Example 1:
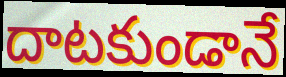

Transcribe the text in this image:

దాటకుండానే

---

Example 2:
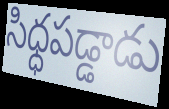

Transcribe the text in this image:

సిధ్ధపడ్డాడు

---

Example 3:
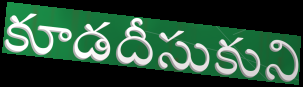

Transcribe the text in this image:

కూడదీసుకుని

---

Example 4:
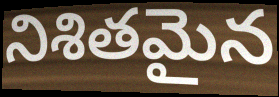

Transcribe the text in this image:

నిశితమైన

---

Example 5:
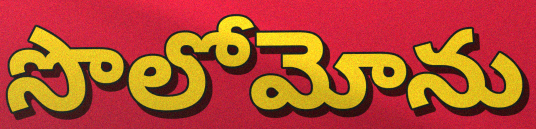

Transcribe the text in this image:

సొలోమోను